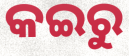
କଇରୁ